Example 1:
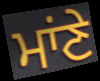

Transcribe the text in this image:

ਮਾਂਣੇ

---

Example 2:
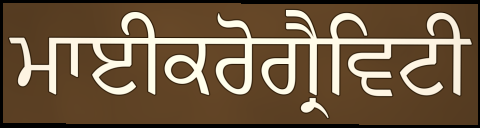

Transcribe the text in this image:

ਮਾਈਕਰੋਗ੍ਰੈਵਿਟੀ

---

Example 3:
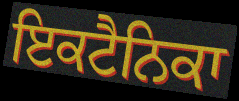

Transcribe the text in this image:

ਇਕਟੈਨਿਕਾ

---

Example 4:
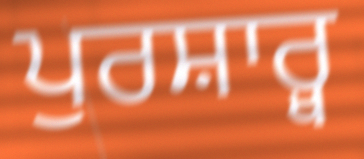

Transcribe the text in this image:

ਪੁਰਸ਼ਾਰ੍ਥ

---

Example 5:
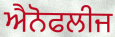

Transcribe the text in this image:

ਐਨੋਫਲੀਜ